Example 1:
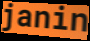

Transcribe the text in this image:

janin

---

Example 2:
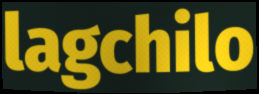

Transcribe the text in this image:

lagchilo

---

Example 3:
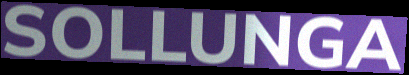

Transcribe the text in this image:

SOLLUNGA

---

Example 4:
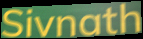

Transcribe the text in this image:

Sivnath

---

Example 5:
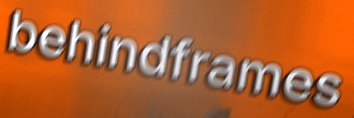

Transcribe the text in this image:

behindframes